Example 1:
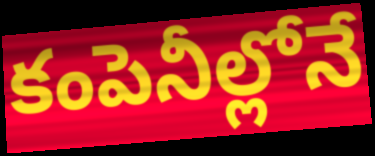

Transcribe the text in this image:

కంపెనీల్లోనే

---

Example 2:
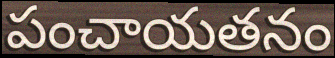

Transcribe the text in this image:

పంచాయతనం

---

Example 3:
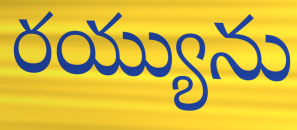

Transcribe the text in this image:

రయ్యును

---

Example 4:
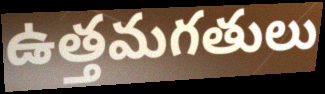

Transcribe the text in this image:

ఉత్తమగతులు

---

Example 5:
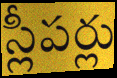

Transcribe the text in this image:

స్లీపర్లు